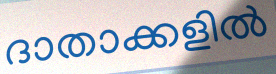
ദാതാക്കളിൽ